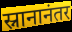
स्नानानंतर